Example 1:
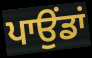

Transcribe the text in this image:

ਪਾਉਂਡਾਂ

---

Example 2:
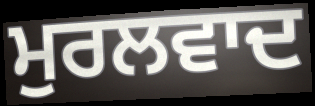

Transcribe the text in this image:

ਮੁਰਲਵਾਦ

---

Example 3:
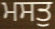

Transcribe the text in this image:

ਮਸਤੁ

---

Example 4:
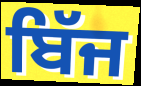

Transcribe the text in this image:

ਬਿੱਜ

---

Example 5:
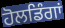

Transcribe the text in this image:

ਹੋਲਡਿੰਗਾਂ